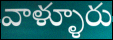
వాళ్ళూరు